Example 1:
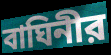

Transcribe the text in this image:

বাঘিনীর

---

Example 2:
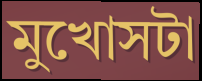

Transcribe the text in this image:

মুখোসটা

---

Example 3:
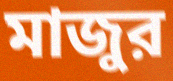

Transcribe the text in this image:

মাজুর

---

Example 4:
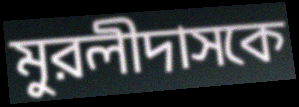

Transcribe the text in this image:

মুরলীদাসকে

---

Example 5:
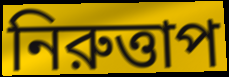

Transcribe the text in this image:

নিরুত্তাপ